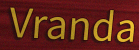
Vranda